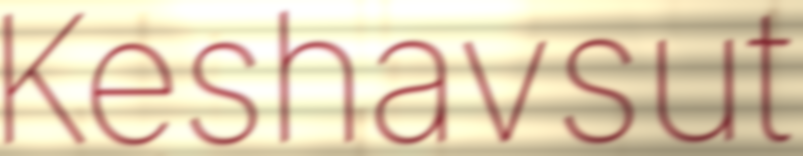
Keshavsut